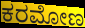
ಕರಮೋಣ